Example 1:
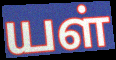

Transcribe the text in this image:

யள்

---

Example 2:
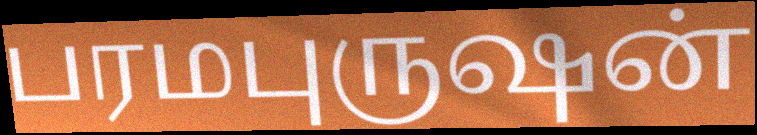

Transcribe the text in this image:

பரமபுருஷன்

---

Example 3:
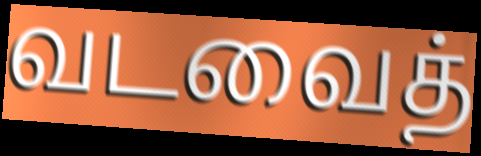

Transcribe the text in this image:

வடவைத்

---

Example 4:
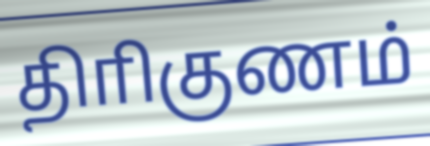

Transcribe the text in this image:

திரிகுணம்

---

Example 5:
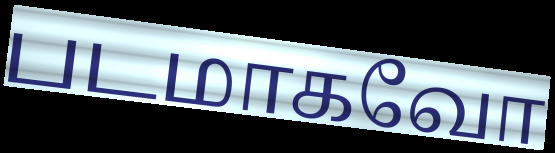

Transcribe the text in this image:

படமாகவோ